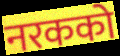
नरकको